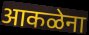
आकळेना